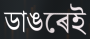
ডাঙৰেই